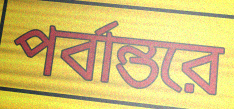
পর্বান্তরে